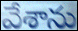
వేశాను